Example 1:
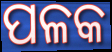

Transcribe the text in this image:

ପଳକ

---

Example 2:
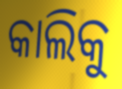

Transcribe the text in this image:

କାଲିକୁ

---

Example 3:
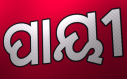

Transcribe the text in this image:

ପାୟୀ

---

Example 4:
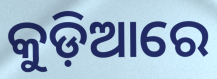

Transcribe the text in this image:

କୁଡ଼ିଆରେ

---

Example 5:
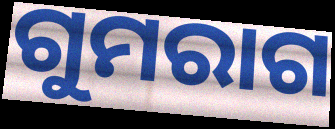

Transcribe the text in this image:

ଗୁମରାଗ